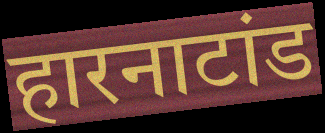
हारनाटांड